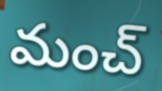
మంచ్